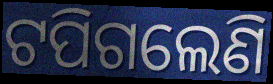
ଟପିଗଲେଣି